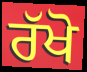
ਰੱਖੋ